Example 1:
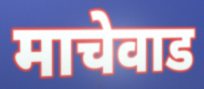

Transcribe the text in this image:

माचेवाड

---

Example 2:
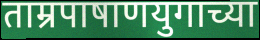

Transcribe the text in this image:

ताम्रपाषाणयुगाच्या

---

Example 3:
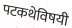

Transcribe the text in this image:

पटकथेविषयी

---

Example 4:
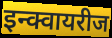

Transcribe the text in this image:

इन्क्वायरीज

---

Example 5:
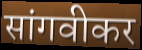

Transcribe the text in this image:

सांगवीकर